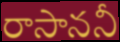
రాసాననీ